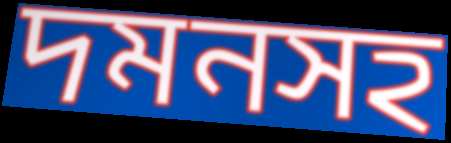
দমনসহ